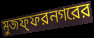
মুজফ্ফরনগরের